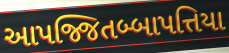
આપજ્જિતબ્બાપત્તિયા